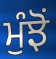
ਮੁੰਝੋਂ